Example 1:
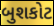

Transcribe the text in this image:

બુશકોટ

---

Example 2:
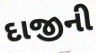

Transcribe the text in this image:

દાજીની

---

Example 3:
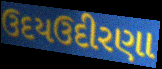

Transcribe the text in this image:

ઉદયઉદીરણા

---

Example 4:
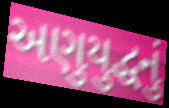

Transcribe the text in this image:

અણુયુદ્ધનું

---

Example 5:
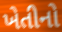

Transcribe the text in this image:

ખેતીનો